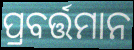
ପ୍ରବର୍ତ୍ତମାନ